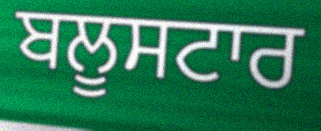
ਬਲੂਸਟਾਰ